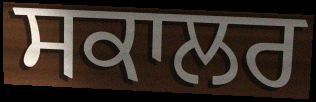
ਸਕਾਲਰ